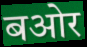
बओर